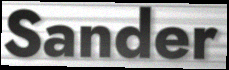
Sander